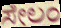
ಸೇಲಂ